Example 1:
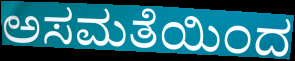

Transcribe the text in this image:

ಅಸಮತೆಯಿಂದ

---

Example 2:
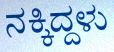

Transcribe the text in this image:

ನಕ್ಕಿದ್ದಳು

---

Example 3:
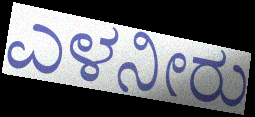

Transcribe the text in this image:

ಎಳನೀರು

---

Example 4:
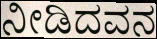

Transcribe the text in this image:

ನೀಡಿದವನ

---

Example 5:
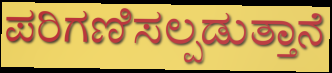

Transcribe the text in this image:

ಪರಿಗಣಿಸಲ್ಪಡುತ್ತಾನೆ